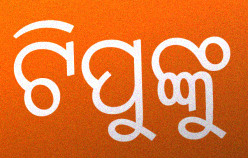
ଟିପୁଙ୍କୁ